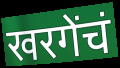
खरगेंचं